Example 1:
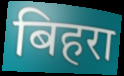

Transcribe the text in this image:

बिहरा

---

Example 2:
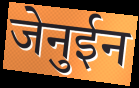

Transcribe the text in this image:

जेनुईन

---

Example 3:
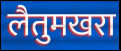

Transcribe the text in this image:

लैतुमखरा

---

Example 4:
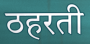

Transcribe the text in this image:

ठहरती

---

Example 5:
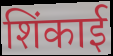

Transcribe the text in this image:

शिंकाई